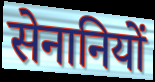
सेनानियों